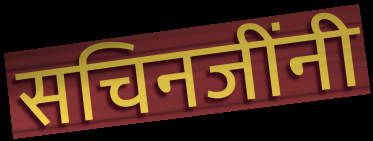
सचिनजींनी